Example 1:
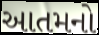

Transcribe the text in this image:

આતમનો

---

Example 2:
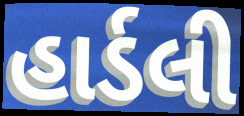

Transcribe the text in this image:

હાર્ડલી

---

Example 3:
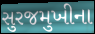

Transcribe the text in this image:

સુરજમુખીના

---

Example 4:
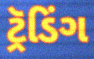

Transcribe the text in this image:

ટ્રૅડિંગ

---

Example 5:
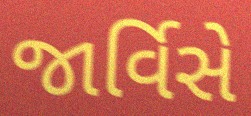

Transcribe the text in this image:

જાર્વિસે